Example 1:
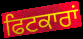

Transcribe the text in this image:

ਫਿਟਕਾਰਾਂ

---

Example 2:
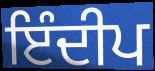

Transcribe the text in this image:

ਇੰਦੀਪ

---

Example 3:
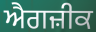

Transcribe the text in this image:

ਐਗਜ਼ੀਕ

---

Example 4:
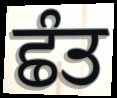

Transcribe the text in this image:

ਛੰਤ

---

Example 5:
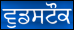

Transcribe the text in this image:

ਵੁਡਸਟੌਕ